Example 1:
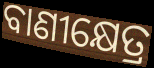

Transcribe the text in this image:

ବାଣୀକ୍ଷେତ୍ର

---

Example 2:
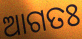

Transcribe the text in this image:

ଆଗତଃ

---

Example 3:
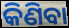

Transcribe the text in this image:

କିଣିବା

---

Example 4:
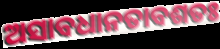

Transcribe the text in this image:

ଅସାବଧାନତାବଶତଃ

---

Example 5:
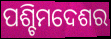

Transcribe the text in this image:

ପଶ୍ଚିମଦେଶର